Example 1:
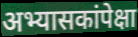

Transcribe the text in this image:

अभ्यासकांपेक्षा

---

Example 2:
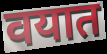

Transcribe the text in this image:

वयात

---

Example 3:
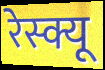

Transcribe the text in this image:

रेस्क्यू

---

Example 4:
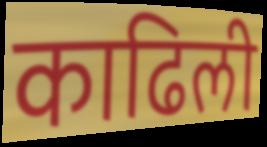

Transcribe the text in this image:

काढिली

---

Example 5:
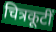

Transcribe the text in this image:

चित्रकूटीं